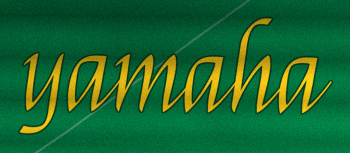
yamaha